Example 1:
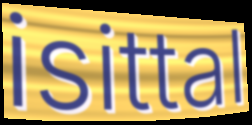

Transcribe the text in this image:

isittal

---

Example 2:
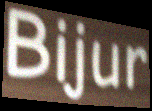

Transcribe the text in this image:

Bijur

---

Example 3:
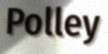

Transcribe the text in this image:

Polley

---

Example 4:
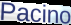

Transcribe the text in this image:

Pacino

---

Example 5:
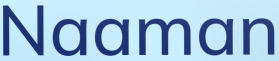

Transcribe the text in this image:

Naaman